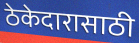
ठेकेदारासाठी